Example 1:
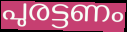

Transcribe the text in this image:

പുരട്ടണം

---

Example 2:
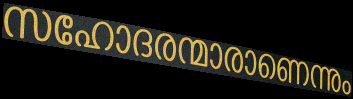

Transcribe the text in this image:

സഹോദരന്മാരാണെന്നും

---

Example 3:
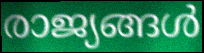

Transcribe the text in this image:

രാജ്യങ്ങൾ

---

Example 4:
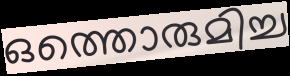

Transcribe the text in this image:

ഒത്തൊരുമിച്ച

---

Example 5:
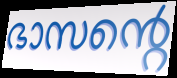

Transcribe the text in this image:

ഭാസന്റെ